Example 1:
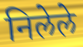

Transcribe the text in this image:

निलेले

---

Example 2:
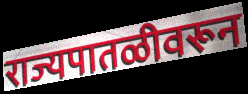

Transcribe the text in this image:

राज्यपातळीवरून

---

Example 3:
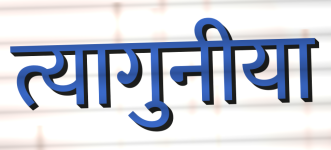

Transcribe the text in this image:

त्यागुनीया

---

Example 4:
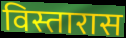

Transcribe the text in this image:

विस्तारास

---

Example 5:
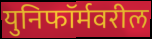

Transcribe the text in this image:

युनिफॉर्मवरील